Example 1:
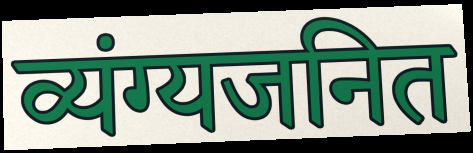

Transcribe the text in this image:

व्यंग्यजनित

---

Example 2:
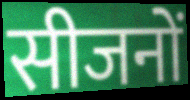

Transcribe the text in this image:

सीजनों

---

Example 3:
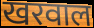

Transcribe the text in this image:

खरवाल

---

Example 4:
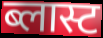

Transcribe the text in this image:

ब्लास्ट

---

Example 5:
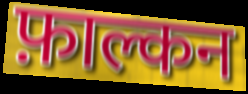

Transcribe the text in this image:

फ़ाल्कन